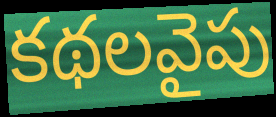
కథలవైపు